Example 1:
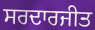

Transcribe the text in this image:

ਸਰਦਾਰਜੀਤ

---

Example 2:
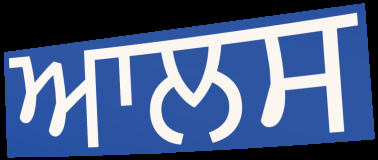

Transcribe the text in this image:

ਆਲਸ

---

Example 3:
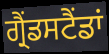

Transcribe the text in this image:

ਗ੍ਰੈਂਡਸਟੈਂਡਾਂ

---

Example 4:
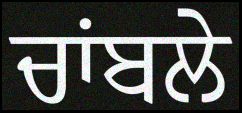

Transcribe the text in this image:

ਚਾਂਬਲੇ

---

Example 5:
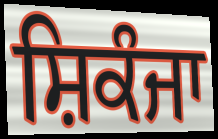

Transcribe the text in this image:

ਸ਼ਿਕੰਜਾ